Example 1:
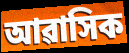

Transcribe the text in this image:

আৱাসিক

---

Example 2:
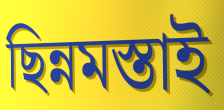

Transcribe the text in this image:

ছিন্নমস্তাই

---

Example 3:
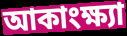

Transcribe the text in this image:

আকাংক্ষ্যা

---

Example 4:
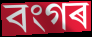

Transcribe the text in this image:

বংগৰ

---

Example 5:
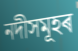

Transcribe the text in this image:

নদীসমূহৰ